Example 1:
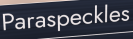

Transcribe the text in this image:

Paraspeckles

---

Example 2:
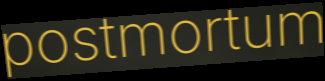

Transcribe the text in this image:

postmortum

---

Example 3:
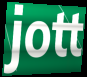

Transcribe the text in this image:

jott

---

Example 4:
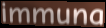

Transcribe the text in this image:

immuna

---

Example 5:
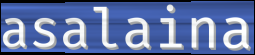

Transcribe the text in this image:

asalaina